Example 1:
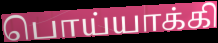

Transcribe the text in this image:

பொய்யாக்கி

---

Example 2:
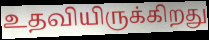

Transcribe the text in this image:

உதவியிருக்கிறது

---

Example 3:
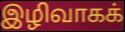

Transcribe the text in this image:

இழிவாகக்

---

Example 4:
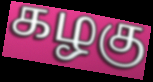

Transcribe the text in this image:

கழகு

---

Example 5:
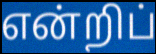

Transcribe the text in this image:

என்றிப்